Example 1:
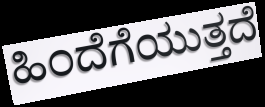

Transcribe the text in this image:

ಹಿಂದೆಗೆಯುತ್ತದೆ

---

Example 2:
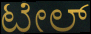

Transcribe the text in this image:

ಟೇಲ್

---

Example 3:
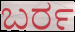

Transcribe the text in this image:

ಬರ್ರ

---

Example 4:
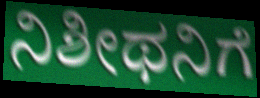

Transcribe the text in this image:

ನಿಶೀಥನಿಗೆ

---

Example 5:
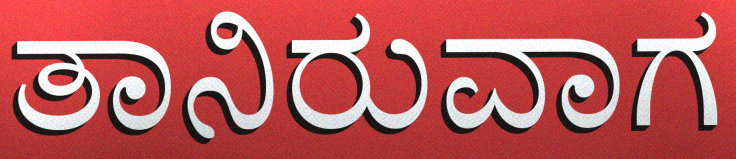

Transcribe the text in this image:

ತಾನಿರುವಾಗ